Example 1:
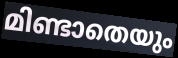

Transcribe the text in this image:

മിണ്ടാതെയും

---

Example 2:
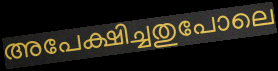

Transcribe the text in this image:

അപേക്ഷിച്ചതുപോലെ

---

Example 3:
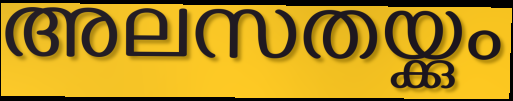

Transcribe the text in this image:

അലസതയ്ക്കും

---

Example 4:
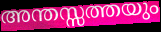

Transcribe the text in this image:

അന്തസ്സത്തയും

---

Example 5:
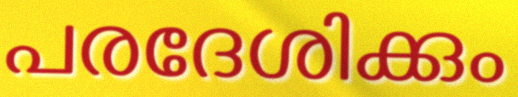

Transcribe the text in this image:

പരദേശിക്കും